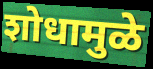
शोधामुळे